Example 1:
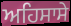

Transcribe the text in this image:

ਅਹਿਸਾਸੇ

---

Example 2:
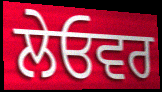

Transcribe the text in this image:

ਲੇਓਵਰ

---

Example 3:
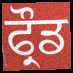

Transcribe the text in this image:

ਫ੍ਰੌਡ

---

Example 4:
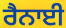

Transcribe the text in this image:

ਰੈਨਾਈ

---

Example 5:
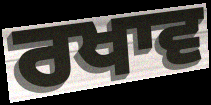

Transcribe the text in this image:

ਰਖਾਵ